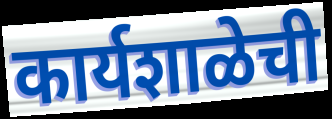
कार्यशाळेची